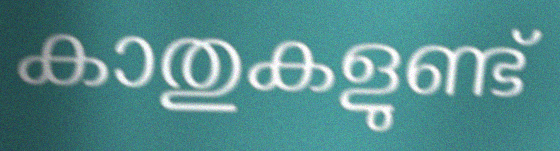
കാതുകളുണ്ട്